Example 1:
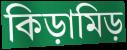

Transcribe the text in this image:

কিড়ামিড়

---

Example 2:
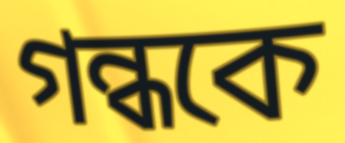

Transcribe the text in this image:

গন্ধকে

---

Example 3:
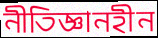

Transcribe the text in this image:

নীতিজ্ঞানহীন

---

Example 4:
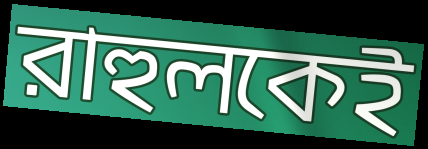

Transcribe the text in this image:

রাহুলকেই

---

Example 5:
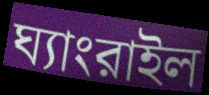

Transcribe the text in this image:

ঘ্যাংরাইল